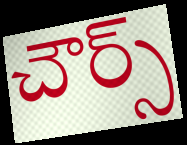
చౌర్స్